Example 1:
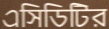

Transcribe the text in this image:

এসিডিটির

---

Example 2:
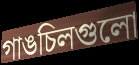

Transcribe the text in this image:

গাঙচিলগুলো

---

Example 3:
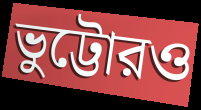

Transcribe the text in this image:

ভুট্টোরও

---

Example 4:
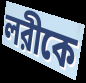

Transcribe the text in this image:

লরীকে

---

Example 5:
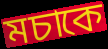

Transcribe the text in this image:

মচাকে